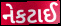
નેકટાઈ